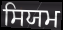
ਸਿਯਮ